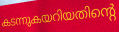
കടന്നുകയറിയതിന്റെ